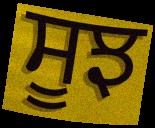
ਸੂਝ